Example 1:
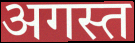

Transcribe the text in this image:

अगस्‍त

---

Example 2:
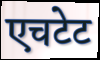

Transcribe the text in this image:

एचटेट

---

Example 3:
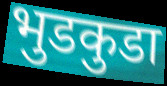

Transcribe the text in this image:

भुडकुडा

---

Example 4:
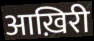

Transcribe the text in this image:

आख़िरी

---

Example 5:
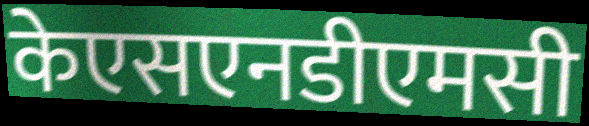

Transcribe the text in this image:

केएसएनडीएमसी